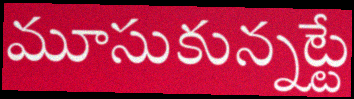
మూసుకున్నట్టే